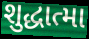
શુદ્ધાત્મા